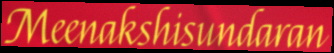
Meenakshisundaran